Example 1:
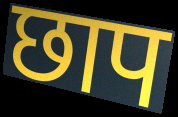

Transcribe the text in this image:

छाप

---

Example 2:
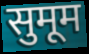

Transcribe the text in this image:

सुमूम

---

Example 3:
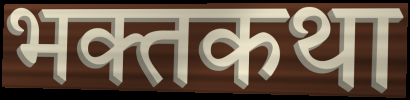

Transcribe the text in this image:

भक्तकथा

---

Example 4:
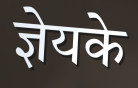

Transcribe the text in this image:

ज्ञेयके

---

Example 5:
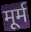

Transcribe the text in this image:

मूर्म